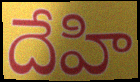
దేహి